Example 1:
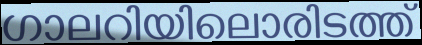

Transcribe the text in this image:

ഗാലറിയിലൊരിടത്ത്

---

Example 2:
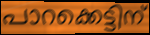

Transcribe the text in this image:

പാറക്കെട്ടിന്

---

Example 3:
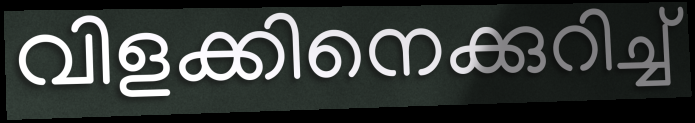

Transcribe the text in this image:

വിളക്കിനെക്കുറിച്ച്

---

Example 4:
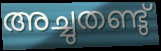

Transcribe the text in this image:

അച്ചുതണ്ടു്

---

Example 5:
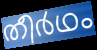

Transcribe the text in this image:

തീർഥം